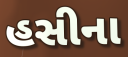
હસીના